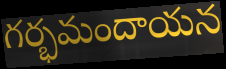
గర్భమందాయన